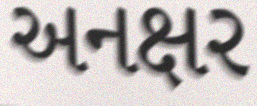
અનક્ષર